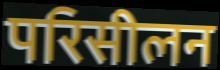
परिसीलन